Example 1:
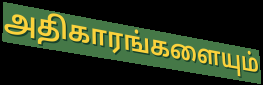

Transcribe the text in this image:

அதிகாரங்களையும்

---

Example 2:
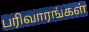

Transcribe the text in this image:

பரிவாரங்கள்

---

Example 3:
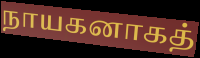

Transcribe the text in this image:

நாயகனாகத்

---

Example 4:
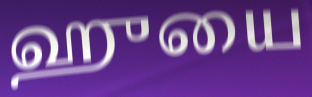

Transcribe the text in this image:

ஹுயை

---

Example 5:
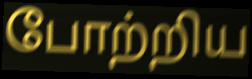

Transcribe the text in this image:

போற்றிய